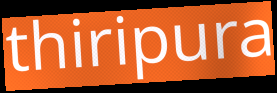
thiripura